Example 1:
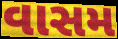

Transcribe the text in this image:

વાસમ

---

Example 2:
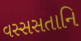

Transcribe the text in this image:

વસ્સસતાનિ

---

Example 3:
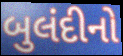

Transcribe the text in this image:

બુલંદીનો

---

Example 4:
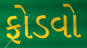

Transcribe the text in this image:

ફોડવો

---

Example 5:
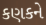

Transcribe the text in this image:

કણકને